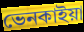
ভেনকাইয়া